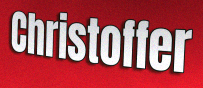
Christoffer